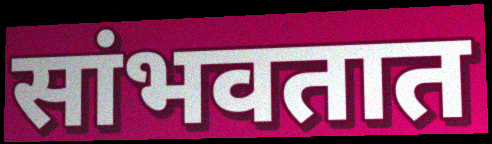
सांभवतात